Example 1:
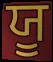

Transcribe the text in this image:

ਯੂ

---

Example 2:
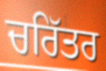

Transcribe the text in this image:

ਚਰਿੱਤਰ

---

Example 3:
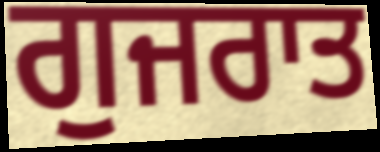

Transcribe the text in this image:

ਗੁਜਰਾਤ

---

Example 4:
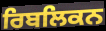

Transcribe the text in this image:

ਰਿਬਲਿਕਨ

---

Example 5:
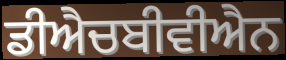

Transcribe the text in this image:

ਡੀਐਚਬੀਵੀਐਨ